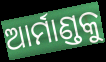
ଆର୍ମାଣ୍ଡକୁ